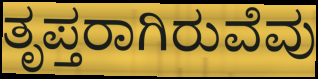
ತೃಪ್ತರಾಗಿರುವೆವು